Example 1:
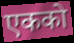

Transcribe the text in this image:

एकको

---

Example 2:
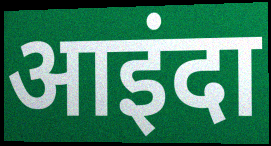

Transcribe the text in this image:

आइंदा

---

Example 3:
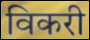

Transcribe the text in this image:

विकरी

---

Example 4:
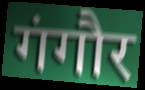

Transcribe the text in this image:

गंगौर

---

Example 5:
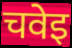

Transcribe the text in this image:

चवेइ